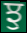
ਝੁ